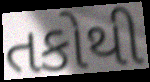
તકોથી